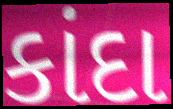
કાંદા